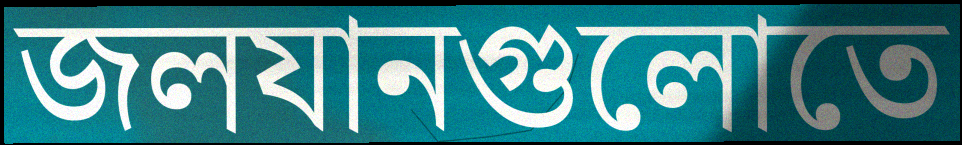
জলযানগুলোতে